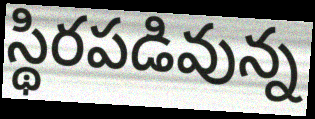
స్థిరపడివున్న